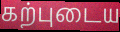
கற்புடைய